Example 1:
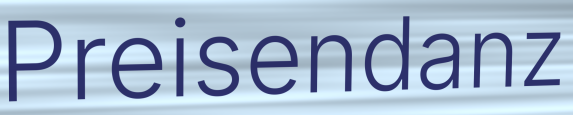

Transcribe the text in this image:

Preisendanz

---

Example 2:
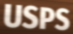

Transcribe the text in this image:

USPS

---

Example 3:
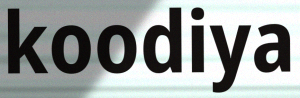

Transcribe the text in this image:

koodiya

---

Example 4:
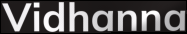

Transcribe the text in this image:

Vidhanna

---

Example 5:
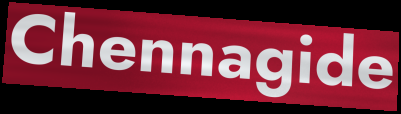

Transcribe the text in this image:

Chennagide